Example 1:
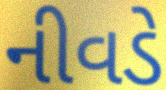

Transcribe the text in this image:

નીવડે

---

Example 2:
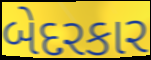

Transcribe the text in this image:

બેદરકાર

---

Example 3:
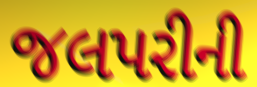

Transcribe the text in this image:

જલપરીની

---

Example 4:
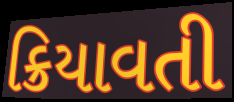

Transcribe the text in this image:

ક્રિયાવતી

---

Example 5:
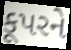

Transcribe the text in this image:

કૂપરને